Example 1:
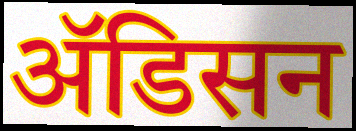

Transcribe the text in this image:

ॲडिसन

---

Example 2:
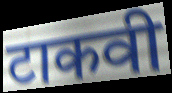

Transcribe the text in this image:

टाकवी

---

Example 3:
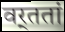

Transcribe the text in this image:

वर्ततां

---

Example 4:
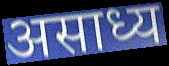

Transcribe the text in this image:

असाध्य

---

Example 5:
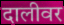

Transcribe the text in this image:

दालीवर